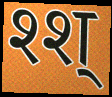
श्श्